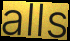
alls